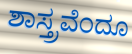
ಶಾಸ್ತ್ರವೆಂದೂ